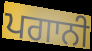
ਪਗਾਨੀ